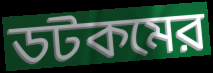
ডটকমের